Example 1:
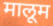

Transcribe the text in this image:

मालूम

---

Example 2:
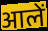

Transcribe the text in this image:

आलें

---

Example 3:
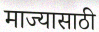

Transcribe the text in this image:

माज्यासाठी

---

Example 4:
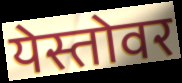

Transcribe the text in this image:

येस्तोवर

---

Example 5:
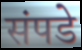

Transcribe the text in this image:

संपडे